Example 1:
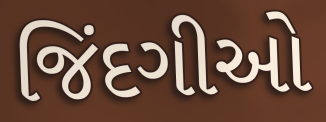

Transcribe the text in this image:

જિંદગીઓ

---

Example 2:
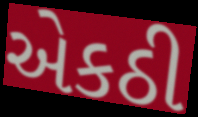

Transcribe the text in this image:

એકઠી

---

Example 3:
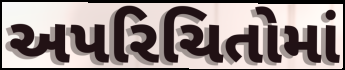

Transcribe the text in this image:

અપરિચિતોમાં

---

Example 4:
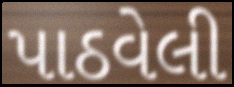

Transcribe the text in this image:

પાઠવેલી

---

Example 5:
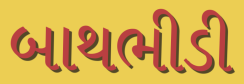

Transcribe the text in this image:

બાથભીડી